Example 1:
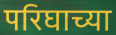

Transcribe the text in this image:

परिघाच्या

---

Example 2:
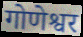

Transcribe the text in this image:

गोणेश्वर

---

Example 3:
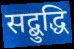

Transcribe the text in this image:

सद्बुद्धि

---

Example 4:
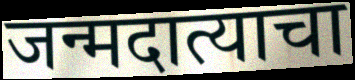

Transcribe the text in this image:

जन्मदात्याचा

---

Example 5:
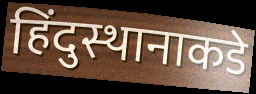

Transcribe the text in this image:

हिंदुस्थानाकडे